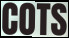
COTS